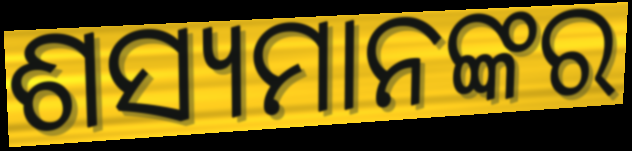
ଶସ୍ୟମାନଙ୍କର